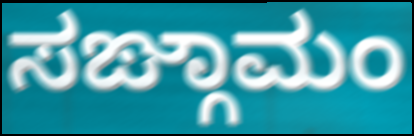
ಸಙ್ಗಾಮಂ